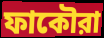
ফাকৌরা